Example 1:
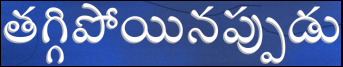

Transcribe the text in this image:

తగ్గిపోయినప్పుడు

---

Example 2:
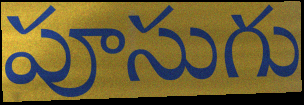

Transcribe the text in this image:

పూసుగు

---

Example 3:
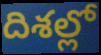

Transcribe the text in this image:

దిశల్లో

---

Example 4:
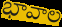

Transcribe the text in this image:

భావాల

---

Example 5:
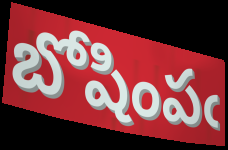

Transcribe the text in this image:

బోషింపఁ